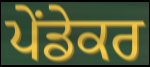
ਪੇਂਡੇਕਰ